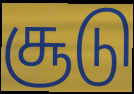
சூடு